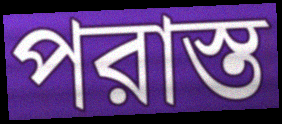
পরাস্ত